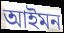
আইমন